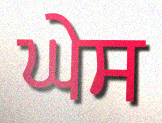
ਘੇਸ